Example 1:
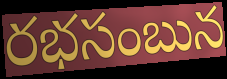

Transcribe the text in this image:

రభసంబున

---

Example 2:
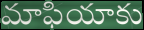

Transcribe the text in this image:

మాఫియాకు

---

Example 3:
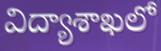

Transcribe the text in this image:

విద్యాశాఖలో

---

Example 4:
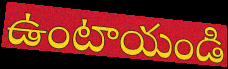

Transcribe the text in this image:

ఉంటాయండి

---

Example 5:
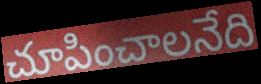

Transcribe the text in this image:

చూపించాలనేది